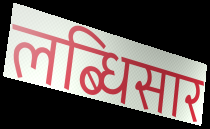
लब्धिसार